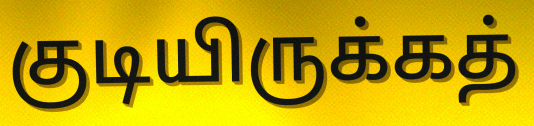
குடியிருக்கத்